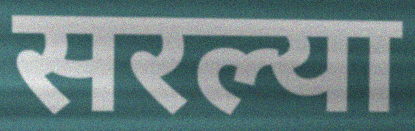
सरल्या